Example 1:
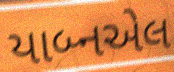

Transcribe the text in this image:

યાબ્નએલ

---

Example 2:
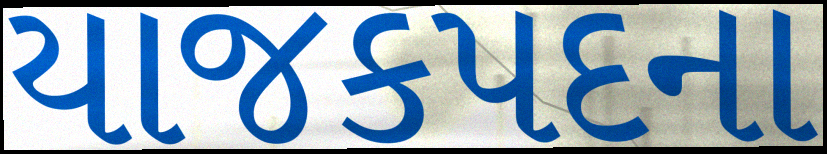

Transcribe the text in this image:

યાજકપદના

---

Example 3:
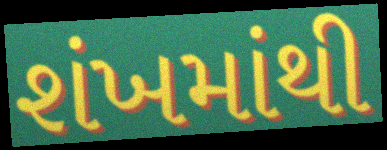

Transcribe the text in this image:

શંખમાંથી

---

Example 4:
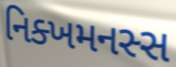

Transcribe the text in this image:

નિક્ખમનસ્સ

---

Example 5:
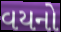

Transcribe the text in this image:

વયનો